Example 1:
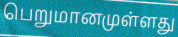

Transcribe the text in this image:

பெறுமானமுள்ளது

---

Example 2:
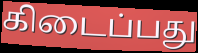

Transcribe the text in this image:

கிடைப்பது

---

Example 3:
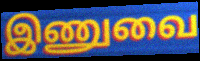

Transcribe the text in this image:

இணுவை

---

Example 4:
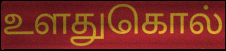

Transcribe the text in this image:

உளதுகொல்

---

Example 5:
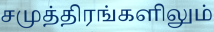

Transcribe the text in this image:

சமுத்திரங்களிலும்